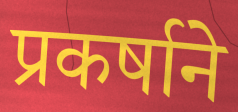
प्रकर्षाने